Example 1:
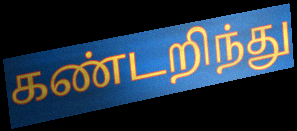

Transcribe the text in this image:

கண்டறிந்து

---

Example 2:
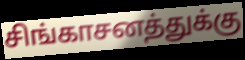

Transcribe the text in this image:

சிங்காசனத்துக்கு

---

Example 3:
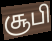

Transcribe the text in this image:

சூபி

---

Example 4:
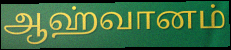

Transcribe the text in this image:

ஆஹ்வானம்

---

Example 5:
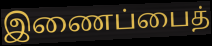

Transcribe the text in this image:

இணைப்பைத்